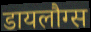
डायलौग्स